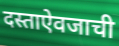
दस्ताऐवजाची